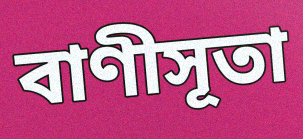
বাণীসূতা